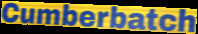
Cumberbatch